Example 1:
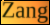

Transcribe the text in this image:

Zang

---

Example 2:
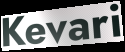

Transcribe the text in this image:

Kevari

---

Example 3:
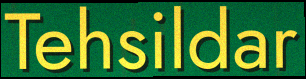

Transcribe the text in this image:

Tehsildar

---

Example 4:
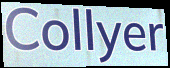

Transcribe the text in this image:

Collyer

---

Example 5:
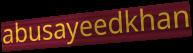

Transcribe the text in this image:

abusayeedkhan